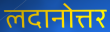
लदानोत्तर